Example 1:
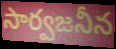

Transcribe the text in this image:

సార్వజనీన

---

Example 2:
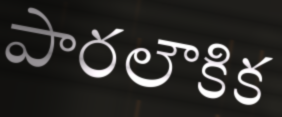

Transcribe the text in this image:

పారలౌకిక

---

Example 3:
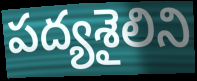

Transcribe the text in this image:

పద్యశైలిని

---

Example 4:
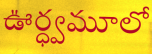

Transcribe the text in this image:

ఊర్ధ్వమూలో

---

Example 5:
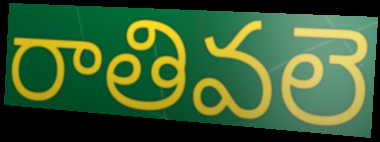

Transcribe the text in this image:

రాతివలె